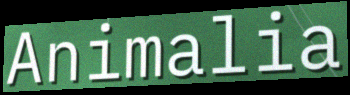
Animalia